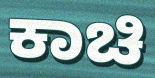
ಕಾಚಿ